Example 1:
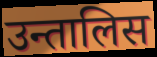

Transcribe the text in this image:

उन्तालिस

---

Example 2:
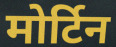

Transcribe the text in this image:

मोर्टिन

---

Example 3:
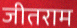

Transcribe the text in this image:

जीतराम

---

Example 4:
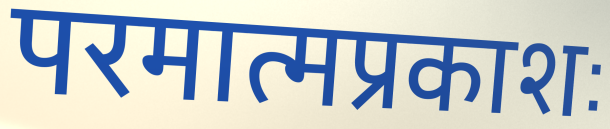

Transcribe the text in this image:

परमात्मप्रकाशः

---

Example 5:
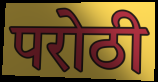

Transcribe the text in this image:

परोठी